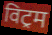
विट्रम